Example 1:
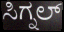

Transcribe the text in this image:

ಸಿಗ್ನಲ್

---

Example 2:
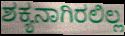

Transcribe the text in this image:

ಶಕ್ಯನಾಗಿರಲಿಲ್ಲ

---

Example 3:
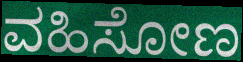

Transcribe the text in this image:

ವಹಿಸೋಣ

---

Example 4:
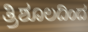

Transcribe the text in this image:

ತ್ರಿಶೂಲದಿಂದ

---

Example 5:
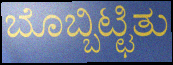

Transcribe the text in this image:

ಬೊಬ್ಬಿಟ್ಟಿತು